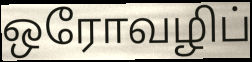
ஒரோவழிப்